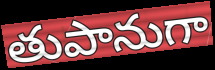
తుపానుగా